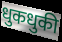
धुकधुकी